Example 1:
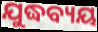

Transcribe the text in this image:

ଯୁଦ୍ଧବ୍ୟୟ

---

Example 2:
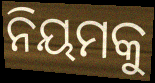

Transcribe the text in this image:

ନିୟମକୁ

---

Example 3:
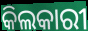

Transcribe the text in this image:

କିଲକାରୀ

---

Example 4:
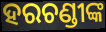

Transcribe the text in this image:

ହରଚଣ୍ଡୀଙ୍କ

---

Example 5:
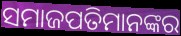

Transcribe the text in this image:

ସମାଜପତିମାନଙ୍କର